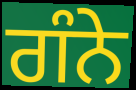
ਗੰਨੇ